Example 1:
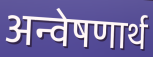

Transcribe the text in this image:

अन्वेषणार्थ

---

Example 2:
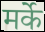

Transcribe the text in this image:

मर्के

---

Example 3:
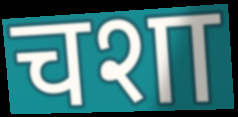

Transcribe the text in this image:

चशा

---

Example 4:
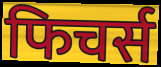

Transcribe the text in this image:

फिचर्स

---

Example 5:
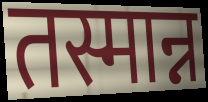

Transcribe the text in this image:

तस्मान्न